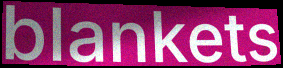
blankets